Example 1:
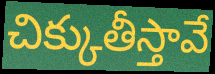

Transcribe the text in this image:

చిక్కుతీస్తావే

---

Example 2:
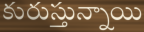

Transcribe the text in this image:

కురుస్తున్నాయి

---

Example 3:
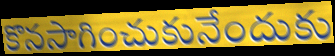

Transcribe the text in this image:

కొనసాగించుకునేందుకు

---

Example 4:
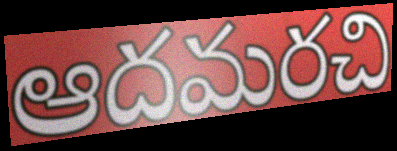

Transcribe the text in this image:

ఆదమరచి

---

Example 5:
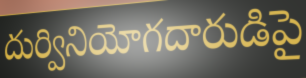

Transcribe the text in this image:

దుర్వినియోగదారుడిపై